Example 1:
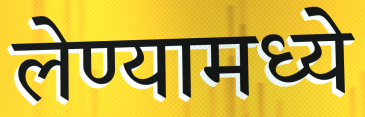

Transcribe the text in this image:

लेण्यामध्ये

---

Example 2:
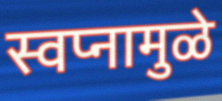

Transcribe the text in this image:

स्वप्नामुळे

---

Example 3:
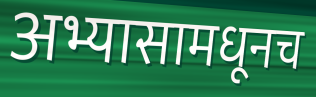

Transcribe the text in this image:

अभ्यासामधूनच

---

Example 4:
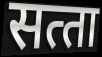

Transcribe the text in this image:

सत्‍ता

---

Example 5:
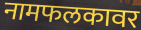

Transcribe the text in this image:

नामफलकावर